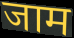
जाम